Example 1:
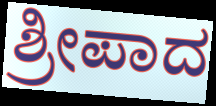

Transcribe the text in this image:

ಶ್ರೀಪಾದ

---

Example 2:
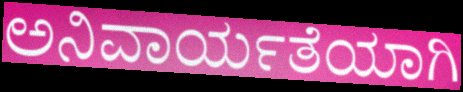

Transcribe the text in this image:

ಅನಿವಾರ್ಯತೆಯಾಗಿ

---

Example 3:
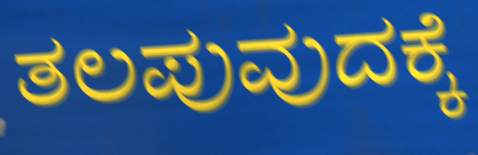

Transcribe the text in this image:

ತಲಪುವುದಕ್ಕೆ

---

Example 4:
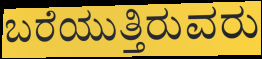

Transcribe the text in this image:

ಬರೆಯುತ್ತಿರುವರು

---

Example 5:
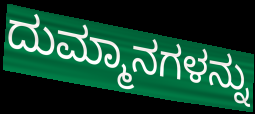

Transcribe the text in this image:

ದುಮ್ಮಾನಗಳನ್ನು